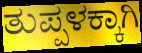
ತುಪ್ಪಳಕ್ಕಾಗಿ